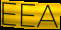
EEA